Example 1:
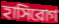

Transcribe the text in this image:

হাসিরোগ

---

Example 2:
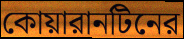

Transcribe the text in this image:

কোয়ারানটিনের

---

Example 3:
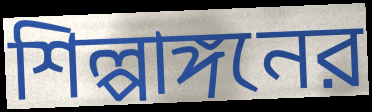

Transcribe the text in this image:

শিল্পাঙ্গনের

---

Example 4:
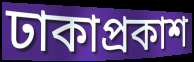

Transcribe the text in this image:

ঢাকাপ্রকাশ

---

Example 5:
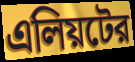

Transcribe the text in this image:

এলিয়টের